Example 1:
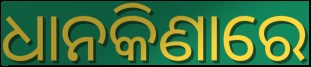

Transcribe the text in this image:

ଧାନକିଣାରେ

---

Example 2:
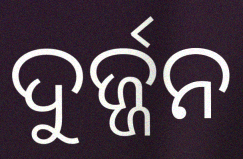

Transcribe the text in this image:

ଦୁର୍ଜ୍ଜନ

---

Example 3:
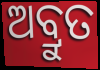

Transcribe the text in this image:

ଅବ୍ରୁତ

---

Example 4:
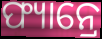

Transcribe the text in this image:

ଫ୍ୟାନ୍ରେ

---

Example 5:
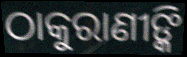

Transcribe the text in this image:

ଠାକୁରାଣୀଙ୍କି